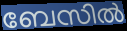
ബേസിൽ